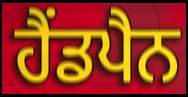
ਹੈਂਡਪੈਨ